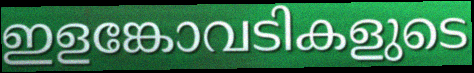
ഇളങ്കോവടികളുടെ